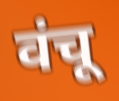
वंचू